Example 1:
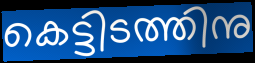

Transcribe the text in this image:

കെട്ടിടത്തിനു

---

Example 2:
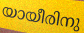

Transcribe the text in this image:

യായീരിനു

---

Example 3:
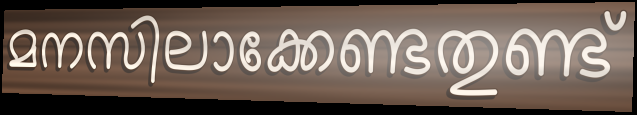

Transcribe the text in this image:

മനസിലാക്കേണ്ടതുണ്ട്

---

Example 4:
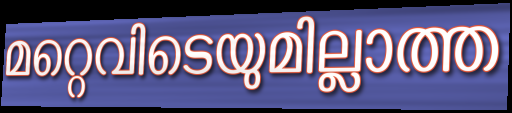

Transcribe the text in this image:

മറ്റെവിടെയുമില്ലാത്ത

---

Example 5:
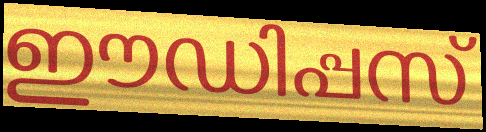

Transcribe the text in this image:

ഈഡിപ്പസ്